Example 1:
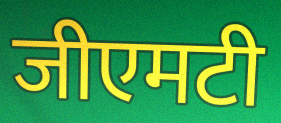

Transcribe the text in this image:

जीएमटी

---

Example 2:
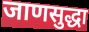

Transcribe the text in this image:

जाणसुद्धा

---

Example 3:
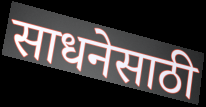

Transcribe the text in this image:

साधनेसाठी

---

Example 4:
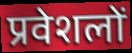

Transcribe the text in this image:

प्रवेशलों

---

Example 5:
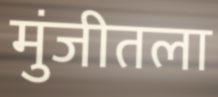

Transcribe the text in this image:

मुंजीतला